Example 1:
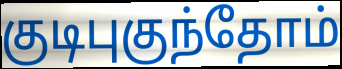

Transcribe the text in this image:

குடிபுகுந்தோம்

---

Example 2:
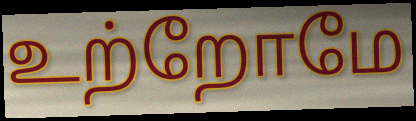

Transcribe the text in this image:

உற்றோமே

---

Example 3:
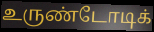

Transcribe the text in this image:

உருண்டோடிக்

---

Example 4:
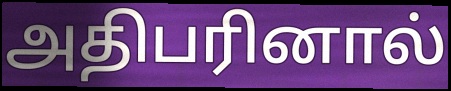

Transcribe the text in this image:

அதிபரினால்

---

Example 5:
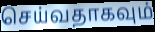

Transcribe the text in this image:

செய்வதாகவும்